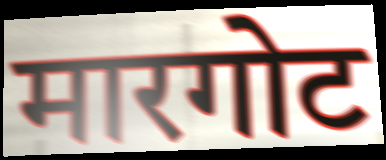
मारगोट